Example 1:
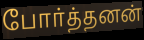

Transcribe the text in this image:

போர்த்தனன்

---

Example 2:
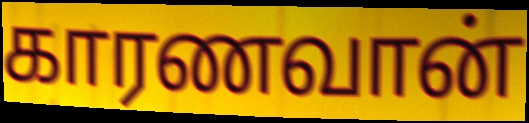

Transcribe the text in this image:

காரணவான்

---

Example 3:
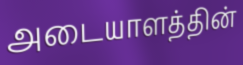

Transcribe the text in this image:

அடையாளத்தின்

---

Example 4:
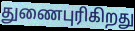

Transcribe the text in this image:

துணைபுரிகிறது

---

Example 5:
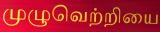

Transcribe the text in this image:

முழுவெற்றியை